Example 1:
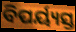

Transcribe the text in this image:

ବିପର୍ୟ୍ୟସ୍ତ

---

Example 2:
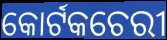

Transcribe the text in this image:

କୋର୍ଟକଚେରୀ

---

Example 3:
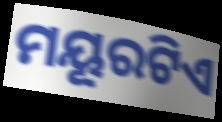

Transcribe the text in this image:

ମୟୂରଟିଏ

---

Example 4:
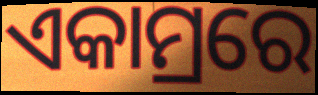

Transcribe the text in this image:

ଏକାମ୍ରରେ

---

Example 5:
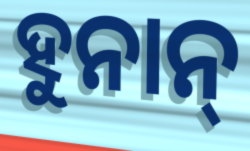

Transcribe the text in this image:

ହୁନାନ୍